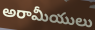
అరామీయులు